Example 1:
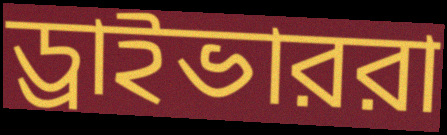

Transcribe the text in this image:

ড্রাইভাররা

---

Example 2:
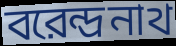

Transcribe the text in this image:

বরেন্দ্রনাথ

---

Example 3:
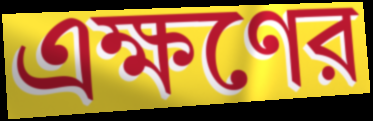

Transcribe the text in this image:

এক্ষণের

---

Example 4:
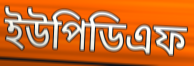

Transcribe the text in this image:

ইউপিডিএফ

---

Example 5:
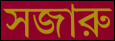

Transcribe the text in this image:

সজারু